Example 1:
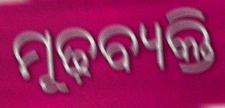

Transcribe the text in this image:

ମୂଢ଼ବ୍ୟକ୍ତି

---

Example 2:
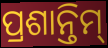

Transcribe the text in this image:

ପ୍ରଶାନ୍ତିମ୍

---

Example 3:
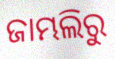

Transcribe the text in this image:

ଜାମ୍ଭଲିରୁ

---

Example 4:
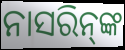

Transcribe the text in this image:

ନାସରିନ୍‌ଙ୍କ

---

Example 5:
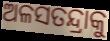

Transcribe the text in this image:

ଅଳସତନ୍ଦ୍ରାକୁ